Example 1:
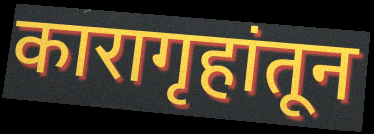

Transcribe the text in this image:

कारागृहांतून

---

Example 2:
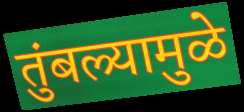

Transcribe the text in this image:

तुंबल्यामुळे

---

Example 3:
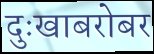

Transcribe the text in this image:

दुःखाबरोबर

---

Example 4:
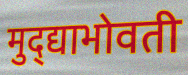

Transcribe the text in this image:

मुद्द्याभोवती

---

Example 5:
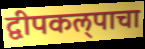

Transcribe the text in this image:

द्वीपकल्पाचा